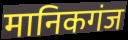
मानिकगंज